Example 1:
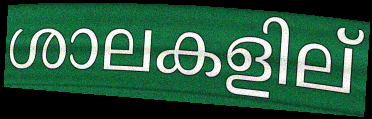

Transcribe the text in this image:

ശാലകളില്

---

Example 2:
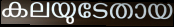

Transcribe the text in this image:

കലയുടേതായ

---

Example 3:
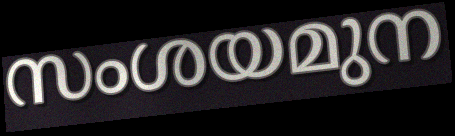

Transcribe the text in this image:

സംശയമുന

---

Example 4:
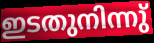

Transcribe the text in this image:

ഇടതുനിന്നു്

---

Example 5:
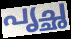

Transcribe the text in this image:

പൃച്ഛ